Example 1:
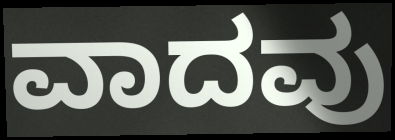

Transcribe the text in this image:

ವಾದವು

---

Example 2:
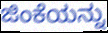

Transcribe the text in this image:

ಜಿಂಕೆಯನ್ನು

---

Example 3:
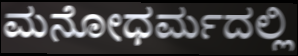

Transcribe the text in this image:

ಮನೋಧರ್ಮದಲ್ಲಿ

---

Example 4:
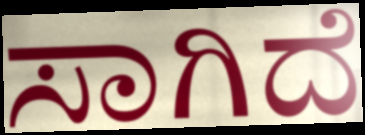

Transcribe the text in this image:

ಸಾಗಿದೆ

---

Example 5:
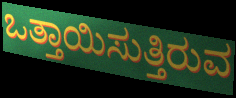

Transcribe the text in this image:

ಒತ್ತಾಯಿಸುತ್ತಿರುವ